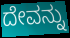
ದೇವನ್ನು